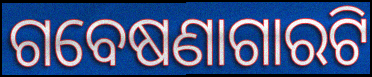
ଗବେଷଣାଗାରଟି